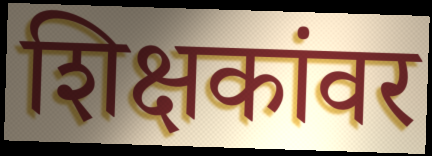
शिक्षकांवर